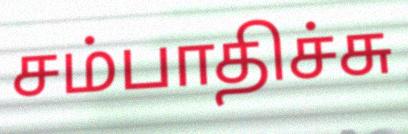
சம்பாதிச்சு